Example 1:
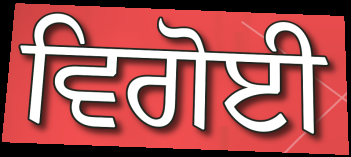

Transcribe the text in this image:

ਵਿਗੋਈ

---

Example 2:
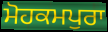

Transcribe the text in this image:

ਮੋਹਕਮਪੁਰਾ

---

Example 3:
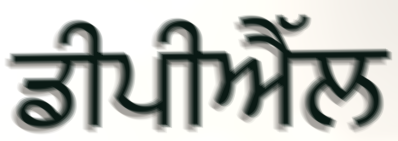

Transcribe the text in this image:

ਡੀਪੀਐੱਲ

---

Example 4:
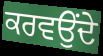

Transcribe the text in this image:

ਕਰਵਉਂਦੇ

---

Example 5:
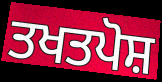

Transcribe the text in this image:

ਤਖਤਪੋਸ਼